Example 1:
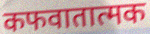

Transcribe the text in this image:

कफवातात्मक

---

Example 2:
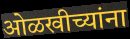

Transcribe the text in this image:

ओळखीच्यांना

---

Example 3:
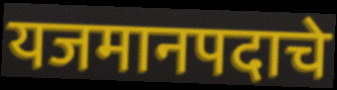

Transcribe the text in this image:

यजमानपदाचे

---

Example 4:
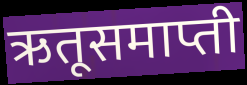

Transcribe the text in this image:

ऋतूसमाप्ती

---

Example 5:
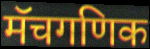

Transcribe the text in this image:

मॅचगणिक